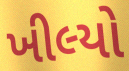
ખીલ્યો